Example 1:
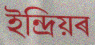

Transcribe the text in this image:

ইন্দ্ৰিয়ৰ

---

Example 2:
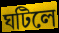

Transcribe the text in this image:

ঘটিলে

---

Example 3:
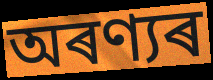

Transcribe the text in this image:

অৰণ্যৰ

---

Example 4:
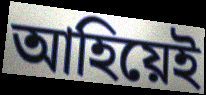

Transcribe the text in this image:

আহিয়েই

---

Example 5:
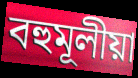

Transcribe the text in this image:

বহুমূলীয়া